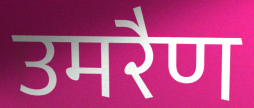
उमरैण